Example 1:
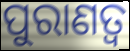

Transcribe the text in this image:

ପୁରାଣତ୍ୱ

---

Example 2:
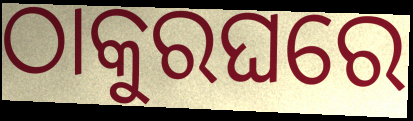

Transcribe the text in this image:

ଠାକୁରଘରେ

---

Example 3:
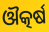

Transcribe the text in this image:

ଔତ୍କର୍ଷ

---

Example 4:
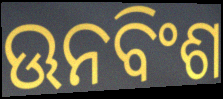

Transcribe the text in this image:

ଊନବିଂଶ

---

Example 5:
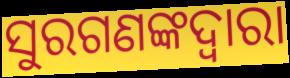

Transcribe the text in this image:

ସୁରଗଣଙ୍କଦ୍ୱାରା